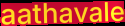
aathavale